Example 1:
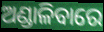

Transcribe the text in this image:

ଅଣ୍ଡାଳିବାରେ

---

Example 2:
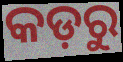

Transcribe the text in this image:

କଡ଼ରୁ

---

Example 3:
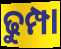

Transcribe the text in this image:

ଢୁମ୍ପା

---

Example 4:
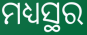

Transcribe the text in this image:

ମଧ୍ୟସ୍ଥର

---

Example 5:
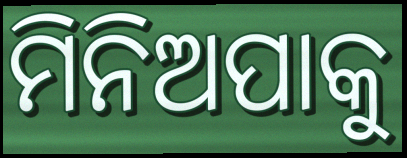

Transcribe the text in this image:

ମିନିଅପାକୁ